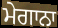
ਮੇਗਾਨਾ